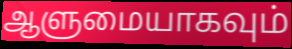
ஆளுமையாகவும்